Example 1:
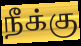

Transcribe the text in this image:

நீக்கு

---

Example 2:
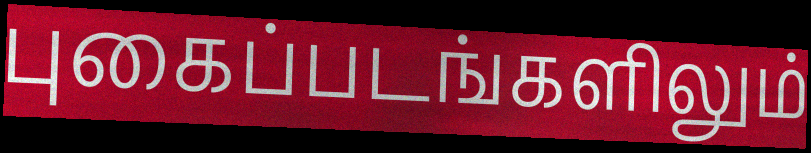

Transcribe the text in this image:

புகைப்படங்களிலும்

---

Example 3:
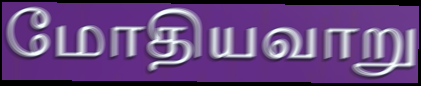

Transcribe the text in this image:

மோதியவாறு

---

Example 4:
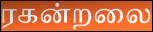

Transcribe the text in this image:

ரகன்றலை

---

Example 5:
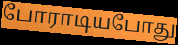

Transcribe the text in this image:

போராடியபோது